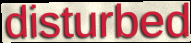
disturbed